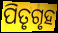
ପିତୃଗୃହ